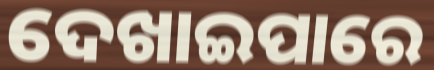
ଦେଖାଇପାରେ